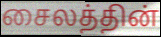
சைலத்தின்